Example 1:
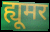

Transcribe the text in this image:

ह्यूमर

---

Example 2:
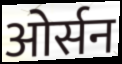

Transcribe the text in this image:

ओर्सन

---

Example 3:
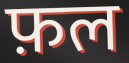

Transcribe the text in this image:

फ़ल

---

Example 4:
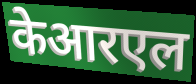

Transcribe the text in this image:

केआरएल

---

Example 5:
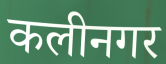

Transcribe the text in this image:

कलीनगर